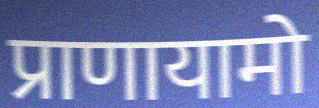
प्राणायामो